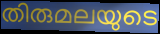
തിരുമലയുടെ